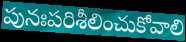
పునఃపరిశీలించుకోవాలి